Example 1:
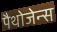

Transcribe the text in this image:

पैथोजेन्स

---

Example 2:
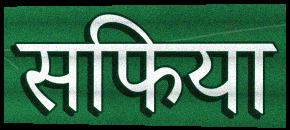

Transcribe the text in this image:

सफिया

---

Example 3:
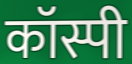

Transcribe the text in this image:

कॉस्पी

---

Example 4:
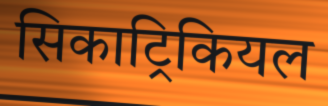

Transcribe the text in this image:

सिकाट्रिकियल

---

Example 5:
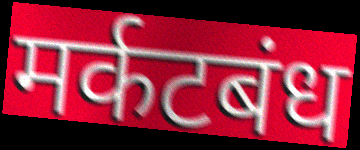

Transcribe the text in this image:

मर्कटबंध